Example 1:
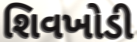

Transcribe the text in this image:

શિવખોડી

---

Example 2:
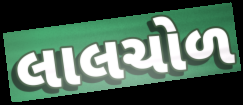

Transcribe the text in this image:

લાલચોળ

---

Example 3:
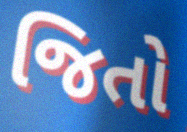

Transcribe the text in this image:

જિતો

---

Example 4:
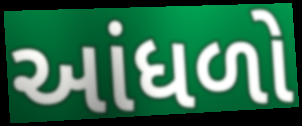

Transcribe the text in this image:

આંધળો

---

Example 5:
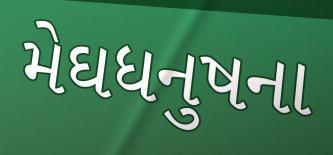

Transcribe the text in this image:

મેઘધનુષના